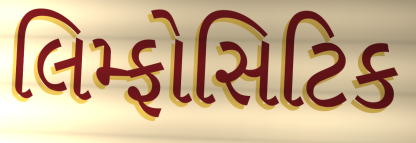
લિમ્ફોસિટિક